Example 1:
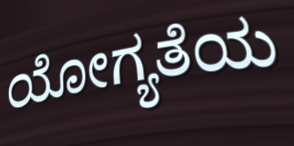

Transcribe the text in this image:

ಯೋಗ್ಯತೆಯ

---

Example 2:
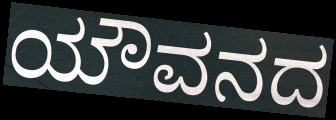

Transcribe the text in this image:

ಯೌವನದ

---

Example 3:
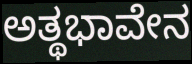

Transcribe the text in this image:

ಅತ್ಥಭಾವೇನ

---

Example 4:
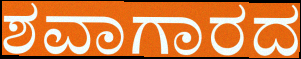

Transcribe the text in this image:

ಶವಾಗಾರದ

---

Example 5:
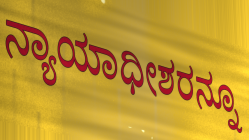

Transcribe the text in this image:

ನ್ಯಾಯಾಧೀಶರನ್ನೂ